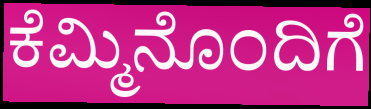
ಕೆಮ್ಮಿನೊಂದಿಗೆ